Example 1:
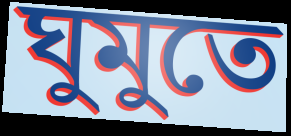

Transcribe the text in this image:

ঘুমুতে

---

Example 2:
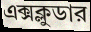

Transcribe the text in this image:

এক্সক্লুডার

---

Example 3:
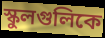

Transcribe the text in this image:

স্কুলগুলিকে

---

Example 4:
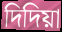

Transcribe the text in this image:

দিদিয়া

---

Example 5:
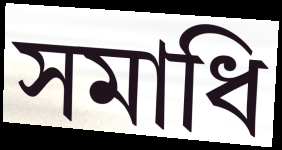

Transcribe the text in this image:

সমাধি